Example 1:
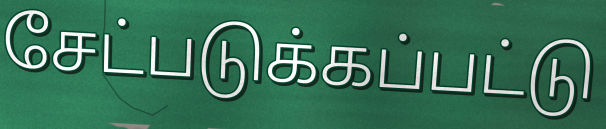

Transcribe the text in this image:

சேட்படுக்கப்பட்டு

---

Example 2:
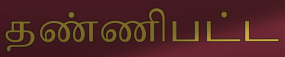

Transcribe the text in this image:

தண்ணிபட்ட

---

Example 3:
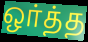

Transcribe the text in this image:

ஒர்த்த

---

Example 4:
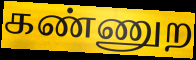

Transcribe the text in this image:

கண்ணுற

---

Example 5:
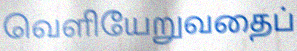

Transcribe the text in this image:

வெளியேறுவதைப்